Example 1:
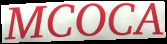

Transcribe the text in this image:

MCOCA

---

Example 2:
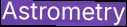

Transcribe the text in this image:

Astrometry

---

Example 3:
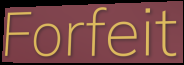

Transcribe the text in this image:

Forfeit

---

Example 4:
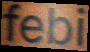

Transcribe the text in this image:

febi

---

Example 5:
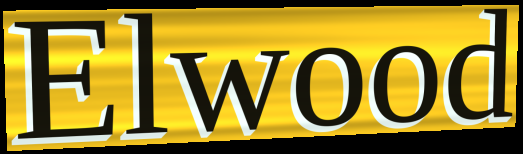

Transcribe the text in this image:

Elwood